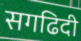
सगढिदी